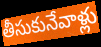
తీసుకునేవాళ్లు